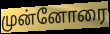
முன்னோரை